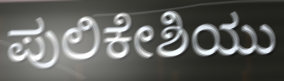
ಪುಲಿಕೇಶಿಯು